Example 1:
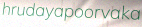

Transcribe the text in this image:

hrudayapoorvaka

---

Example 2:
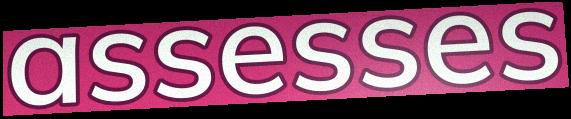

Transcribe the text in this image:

assesses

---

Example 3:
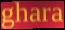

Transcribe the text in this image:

ghara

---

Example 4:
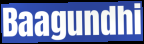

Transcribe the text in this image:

Baagundhi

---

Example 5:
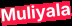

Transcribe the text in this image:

Muliyala